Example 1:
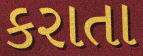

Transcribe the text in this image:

કરાતા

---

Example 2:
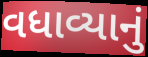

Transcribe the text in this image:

વધાવ્યાનું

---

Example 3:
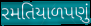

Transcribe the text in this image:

રમતિયાળપણું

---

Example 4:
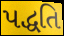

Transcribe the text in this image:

પદ્ધતિ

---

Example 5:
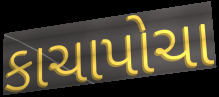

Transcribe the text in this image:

કાચાપોચા